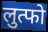
लुत्फो